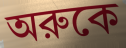
অরুকে